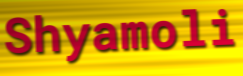
Shyamoli